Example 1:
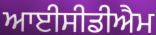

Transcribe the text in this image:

ਆਈਸੀਡੀਐਮ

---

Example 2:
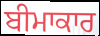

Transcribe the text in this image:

ਬੀਮਾਕਾਰ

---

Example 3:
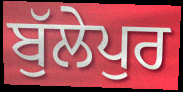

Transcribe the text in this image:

ਬੁੱਲੇਪੁਰ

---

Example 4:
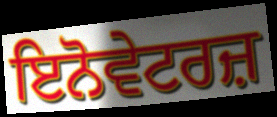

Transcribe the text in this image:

ਇਨੋਵੇਟਰਜ਼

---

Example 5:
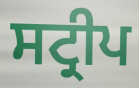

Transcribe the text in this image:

ਸਟ੍ਰੀਪ